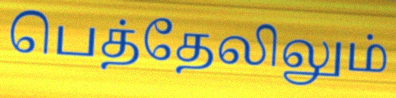
பெத்தேலிலும்